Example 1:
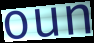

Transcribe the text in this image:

oun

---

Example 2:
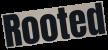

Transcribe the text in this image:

Rooted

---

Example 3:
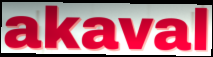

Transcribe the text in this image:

akaval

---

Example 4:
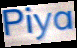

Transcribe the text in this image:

Piya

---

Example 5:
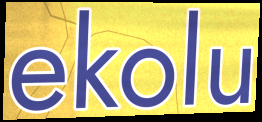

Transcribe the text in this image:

ekolu